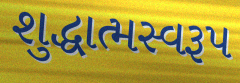
શુદ્ધાત્મસ્વરૂપ